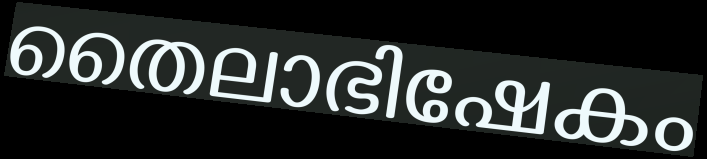
തൈലാഭിഷേകം